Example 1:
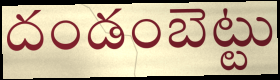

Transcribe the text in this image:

దండంబెట్టు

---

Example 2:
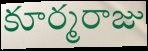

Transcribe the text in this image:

కూర్మరాజు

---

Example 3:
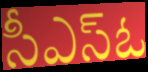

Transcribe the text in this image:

సీఎస్ఓ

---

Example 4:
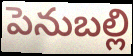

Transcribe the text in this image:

పెనుబల్లి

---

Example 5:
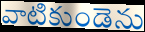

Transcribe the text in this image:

వాటికుండెను